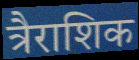
त्रैराशिक